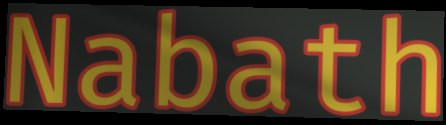
Nabath